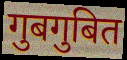
गुबगुबित